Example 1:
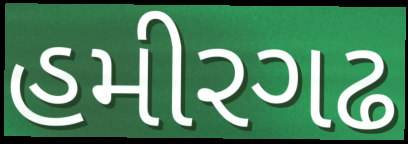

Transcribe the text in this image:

હમીરગઢ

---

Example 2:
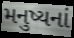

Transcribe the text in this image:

મનુષ્યનાં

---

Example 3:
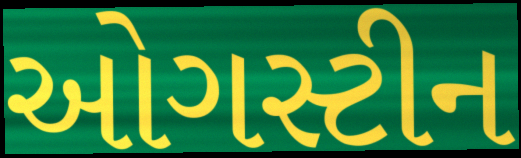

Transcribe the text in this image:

ઓગસ્ટીન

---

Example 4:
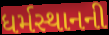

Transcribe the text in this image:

ધર્મસ્થાનની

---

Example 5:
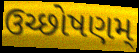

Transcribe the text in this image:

ઉચ્છોષણમ્